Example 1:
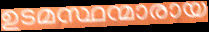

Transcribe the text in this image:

ഉടമസ്ഥന്മാരായ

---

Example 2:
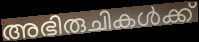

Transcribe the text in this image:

അഭിരുചികൾക്ക്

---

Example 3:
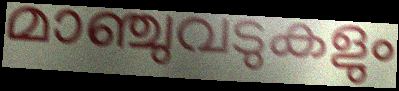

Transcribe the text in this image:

മാഞ്ചുവടുകളും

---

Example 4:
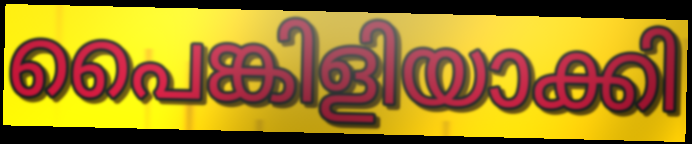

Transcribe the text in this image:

പൈങ്കിളിയാക്കി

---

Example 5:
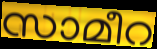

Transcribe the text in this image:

സാമീറ